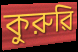
কুৰুৱি